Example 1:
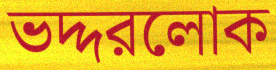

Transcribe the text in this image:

ভদ্দরলোক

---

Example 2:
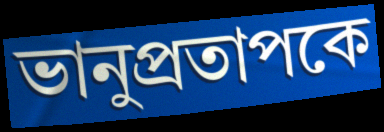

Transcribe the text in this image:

ভানুপ্রতাপকে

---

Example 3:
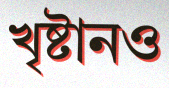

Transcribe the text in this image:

খৃষ্টানও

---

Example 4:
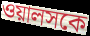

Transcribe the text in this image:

ওয়ালসকে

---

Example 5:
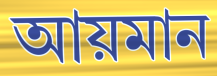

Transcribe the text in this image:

আয়মান